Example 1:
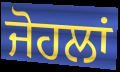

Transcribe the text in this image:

ਜੋਹਲਾਂ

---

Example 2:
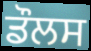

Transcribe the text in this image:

ਡੌਲਸ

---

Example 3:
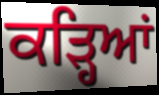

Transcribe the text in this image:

ਕੜ੍ਹਿਆਂ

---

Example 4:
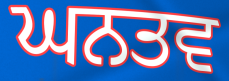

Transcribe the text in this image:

ਘਨਤਵ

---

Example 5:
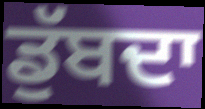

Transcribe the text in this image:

ਡੁੱਬਦਾ